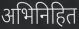
अभिनिहित